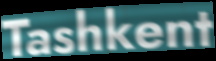
Tashkent